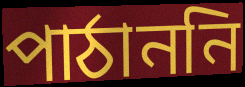
পাঠাননি